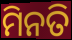
ମିନତି